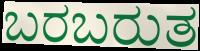
ಬರಬರುತ